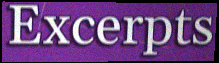
Excerpts